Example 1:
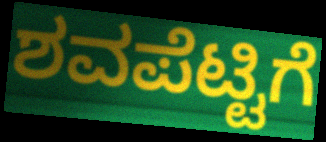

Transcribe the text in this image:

ಶವಪೆಟ್ಟಿಗೆ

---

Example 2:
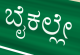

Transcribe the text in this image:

ಬೈಕಲ್ಲೇ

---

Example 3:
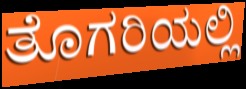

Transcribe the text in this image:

ತೊಗರಿಯಲ್ಲಿ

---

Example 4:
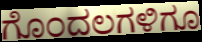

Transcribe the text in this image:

ಗೊಂದಲಗಳಿಗೂ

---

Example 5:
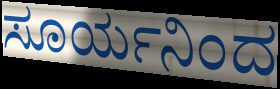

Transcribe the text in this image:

ಸೂರ್ಯನಿಂದ